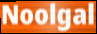
Noolgal